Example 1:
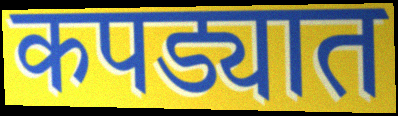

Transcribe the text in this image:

कपड्यात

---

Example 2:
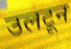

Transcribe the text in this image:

उलटून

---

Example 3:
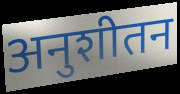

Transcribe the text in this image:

अनुशीतन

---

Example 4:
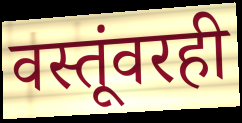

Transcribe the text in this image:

वस्तूंवरही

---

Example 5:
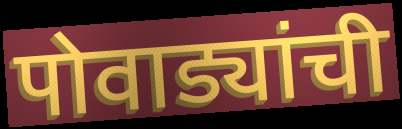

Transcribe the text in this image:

पोवाड्यांची